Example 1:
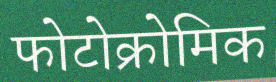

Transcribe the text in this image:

फोटोक्रोमिक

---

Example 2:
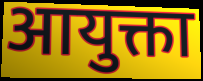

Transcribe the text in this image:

आयुक्ता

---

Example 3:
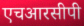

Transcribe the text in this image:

एचआरसीपी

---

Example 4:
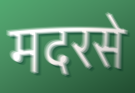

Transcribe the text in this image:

मदरसे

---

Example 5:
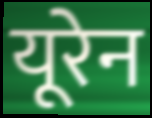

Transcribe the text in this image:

यूरेन